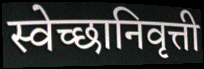
स्वेच्छानिवृत्ती